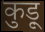
कुड़ू